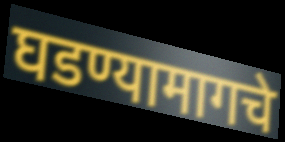
घडण्यामागचे